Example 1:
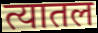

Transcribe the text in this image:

त्यातल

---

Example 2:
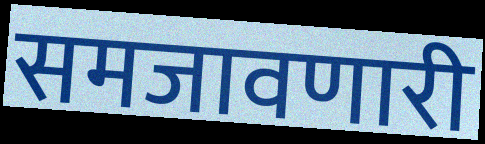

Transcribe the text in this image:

समजावणारी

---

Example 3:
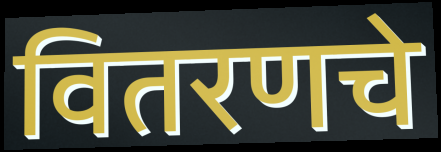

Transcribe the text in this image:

वितरणचे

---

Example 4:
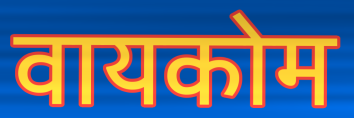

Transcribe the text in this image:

वायकोम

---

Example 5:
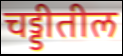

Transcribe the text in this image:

चड्डीतील